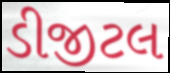
ડીજીટલ